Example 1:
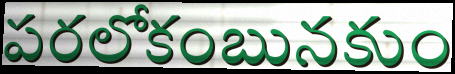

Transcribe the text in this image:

పరలోకంబునకుం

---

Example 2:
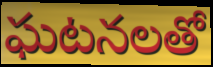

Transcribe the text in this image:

ఘటనలతో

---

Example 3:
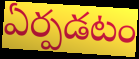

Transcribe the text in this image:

ఏర్పడటం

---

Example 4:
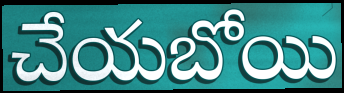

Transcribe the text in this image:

చేయబోయి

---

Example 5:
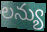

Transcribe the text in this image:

లన్యు